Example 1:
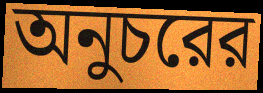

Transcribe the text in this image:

অনুচরের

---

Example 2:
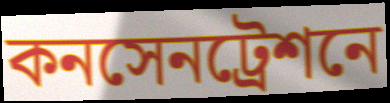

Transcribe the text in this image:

কনসেনট্রেশনে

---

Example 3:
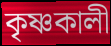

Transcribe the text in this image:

কৃষ্ণকালী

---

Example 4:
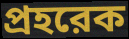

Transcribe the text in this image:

প্রহরেক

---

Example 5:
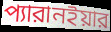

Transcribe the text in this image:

প্যারানইয়ার